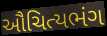
ઔચિત્યભંગ